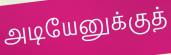
அடியேனுக்குத்